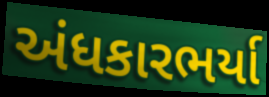
અંધકારભર્યા